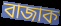
বাজাক